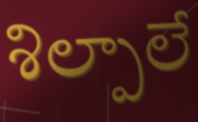
శిల్పాలే